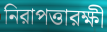
নিরাপত্তারক্ষী